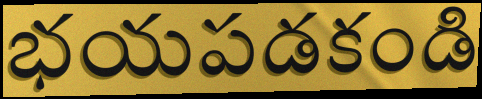
భయపడకండి